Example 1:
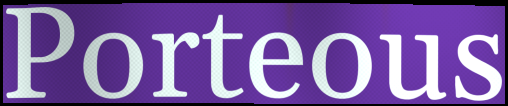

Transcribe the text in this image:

Porteous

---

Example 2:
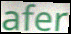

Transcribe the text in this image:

afer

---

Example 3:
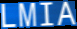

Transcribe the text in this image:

LMIA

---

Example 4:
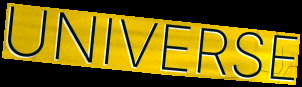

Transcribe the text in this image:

UNIVERSE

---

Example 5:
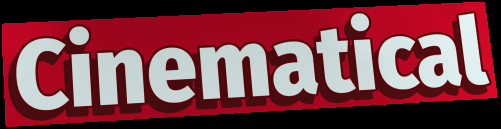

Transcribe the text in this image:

Cinematical